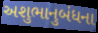
અશુભાનુબંધના